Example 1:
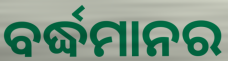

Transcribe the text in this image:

ବର୍ଦ୍ଧମାନର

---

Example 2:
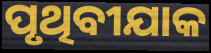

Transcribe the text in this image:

ପୃଥିବୀଯାକ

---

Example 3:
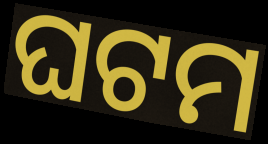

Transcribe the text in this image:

ଘଟମ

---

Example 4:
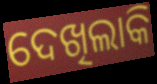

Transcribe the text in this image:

ଦେଖିଲାକି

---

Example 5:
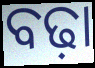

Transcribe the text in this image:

ବଢ଼ା